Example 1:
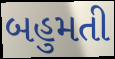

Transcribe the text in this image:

બહુમતી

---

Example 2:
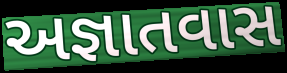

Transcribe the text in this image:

અજ્ઞાતવાસ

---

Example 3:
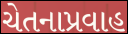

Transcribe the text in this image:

ચેતનાપ્રવાહ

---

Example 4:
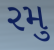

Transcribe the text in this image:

રમુ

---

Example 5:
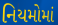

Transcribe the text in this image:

નિયમોમાં